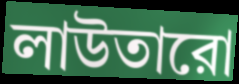
লাউতারো